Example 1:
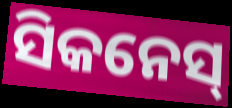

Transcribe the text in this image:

ସିକନେସ୍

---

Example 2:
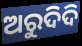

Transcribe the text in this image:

ଅରୁଦିଦି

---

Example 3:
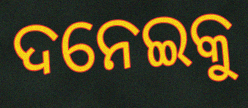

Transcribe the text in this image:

ଦନେଇକୁ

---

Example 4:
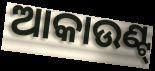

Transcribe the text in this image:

ଆକାଉଣ୍ଟ୍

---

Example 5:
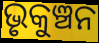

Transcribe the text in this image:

ଭୃକୁଞ୍ଚନ